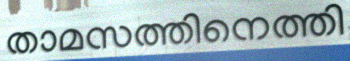
താമസത്തിനെത്തി